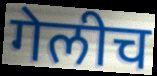
गेलीच